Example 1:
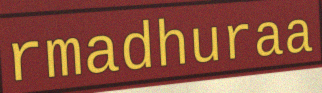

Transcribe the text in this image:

rmadhuraa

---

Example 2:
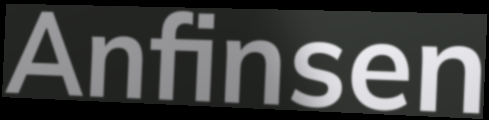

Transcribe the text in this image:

Anfinsen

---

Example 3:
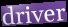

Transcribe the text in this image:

driver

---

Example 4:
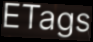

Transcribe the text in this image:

ETags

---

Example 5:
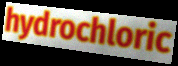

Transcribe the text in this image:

hydrochloric